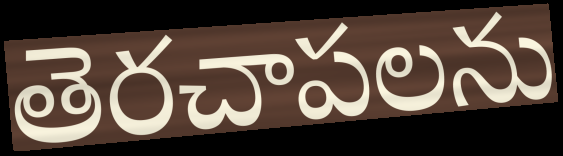
తెరచాపలను